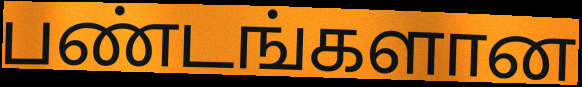
பண்டங்களான